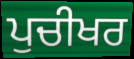
ਪੁਚੀਖਰ